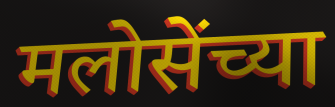
मलोसेंच्या